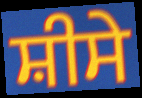
ਸ਼ੀਸੇ